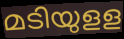
മടിയുളള